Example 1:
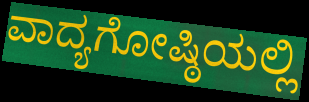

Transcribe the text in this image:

ವಾದ್ಯಗೋಷ್ಠಿಯಲ್ಲಿ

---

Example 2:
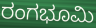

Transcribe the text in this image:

ರಂಗಭೂಮಿ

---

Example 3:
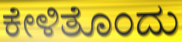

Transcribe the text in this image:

ಕೇಳಿತೊಂದು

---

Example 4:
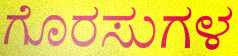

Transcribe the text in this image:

ಗೊರಸುಗಳ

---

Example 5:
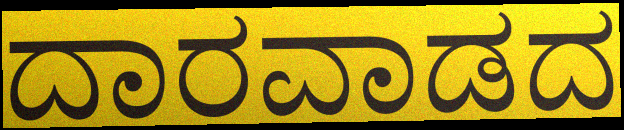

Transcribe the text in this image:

ದಾರವಾಡದ